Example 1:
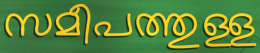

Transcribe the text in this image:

സമീപത്തുള്ള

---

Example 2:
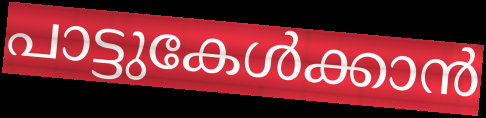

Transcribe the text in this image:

പാട്ടുകേൾക്കാൻ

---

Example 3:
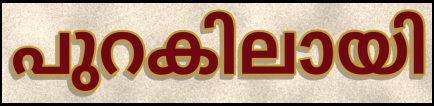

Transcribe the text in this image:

പുറകിലായി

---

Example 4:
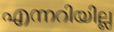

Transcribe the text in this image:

എന്നറിയില്ല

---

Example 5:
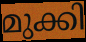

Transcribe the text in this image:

മുക്കി